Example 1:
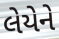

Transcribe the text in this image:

લેયેને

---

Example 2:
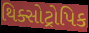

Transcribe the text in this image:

થિક્સોટ્રોપિક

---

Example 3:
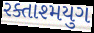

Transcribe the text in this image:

રક્તાશ્મયુગ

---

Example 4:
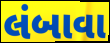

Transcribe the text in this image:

લંબાવા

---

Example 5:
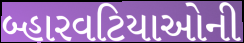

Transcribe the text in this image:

બ્હારવટિયાઓની